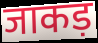
जाकड़